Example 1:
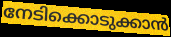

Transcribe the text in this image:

നേടിക്കൊടുക്കാൻ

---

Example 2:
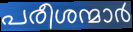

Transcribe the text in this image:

പരീശന്മാർ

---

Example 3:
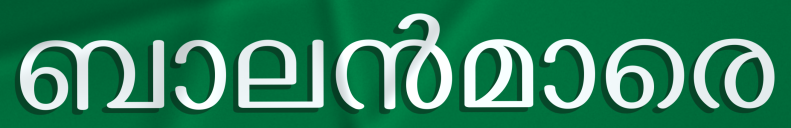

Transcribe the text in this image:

ബാലൻമാരെ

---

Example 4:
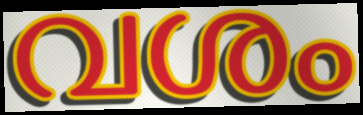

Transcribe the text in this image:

വശം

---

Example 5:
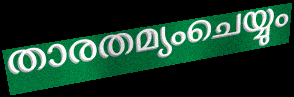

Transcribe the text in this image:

താരതമ്യംചെയ്യും